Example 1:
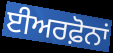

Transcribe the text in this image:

ਈਅਰਫ਼ੋਨਾਂ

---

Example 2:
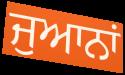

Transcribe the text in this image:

ਜੁਆਨਾਂ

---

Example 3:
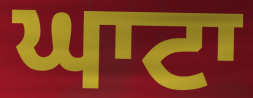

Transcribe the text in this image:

ਘਾਟਾ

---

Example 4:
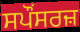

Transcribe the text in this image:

ਸਪੌਂਸਰਜ਼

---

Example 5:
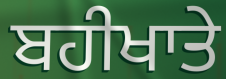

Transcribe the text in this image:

ਬਹੀਖਾਤੇ